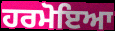
ਹਰਮੋਇਆ